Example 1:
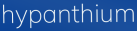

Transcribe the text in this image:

hypanthium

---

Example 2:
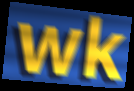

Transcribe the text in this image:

wk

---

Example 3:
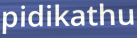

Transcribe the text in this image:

pidikathu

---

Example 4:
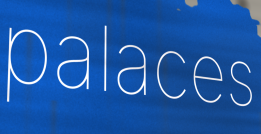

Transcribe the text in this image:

palaces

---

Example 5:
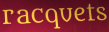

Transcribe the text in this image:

racquets